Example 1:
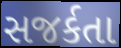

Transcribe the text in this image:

સજર્કતા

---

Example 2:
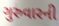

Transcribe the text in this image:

ગુરુવારની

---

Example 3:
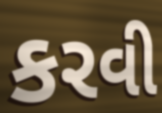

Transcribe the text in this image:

કરવી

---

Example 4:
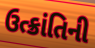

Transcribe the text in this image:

ઉત્ક્રાંતિની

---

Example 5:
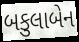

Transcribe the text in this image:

બકુલાબેન